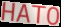
HATO